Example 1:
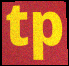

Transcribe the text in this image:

tp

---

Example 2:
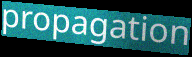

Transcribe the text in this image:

propagation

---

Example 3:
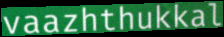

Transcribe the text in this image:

vaazhthukkal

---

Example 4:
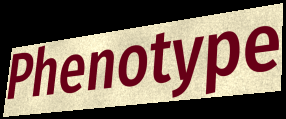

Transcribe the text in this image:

Phenotype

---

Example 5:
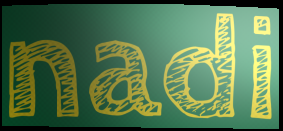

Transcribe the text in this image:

nadi